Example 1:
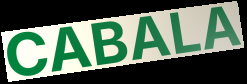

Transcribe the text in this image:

CABALA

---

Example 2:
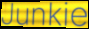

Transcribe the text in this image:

Junkie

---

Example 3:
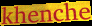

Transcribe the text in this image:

khenche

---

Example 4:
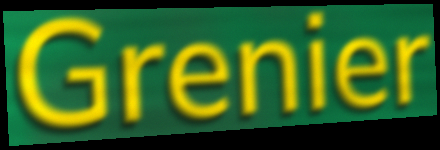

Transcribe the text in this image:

Grenier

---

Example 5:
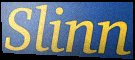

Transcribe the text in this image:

Slinn